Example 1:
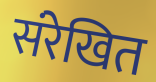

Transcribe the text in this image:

संरेखित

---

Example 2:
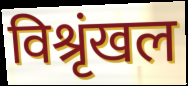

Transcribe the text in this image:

विश्रृंखल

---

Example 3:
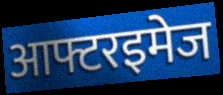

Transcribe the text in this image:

आफ्टरइमेज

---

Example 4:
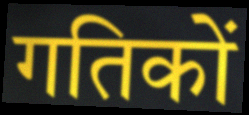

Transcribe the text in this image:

गतिकों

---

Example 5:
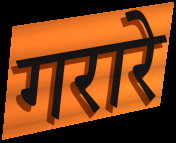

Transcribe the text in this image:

गरारे